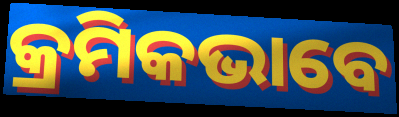
କ୍ରମିକଭାବେ